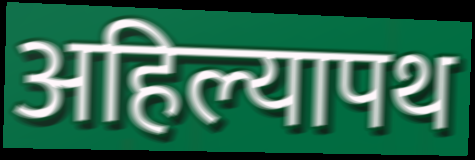
अहिल्यापथ